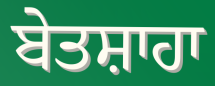
ਬੇਤਸ਼ਾਹਾ